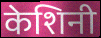
केशिनी